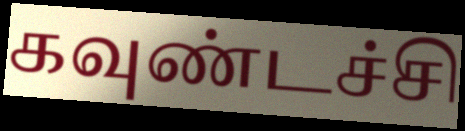
கவுண்டச்சி